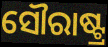
ସୌରାଷ୍ଟ୍ର